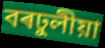
বৰঢুলীয়া